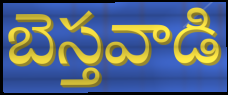
బెస్తవాడి